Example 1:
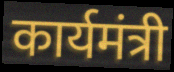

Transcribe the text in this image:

कार्यमंत्री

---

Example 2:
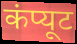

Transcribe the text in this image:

कंप्यूट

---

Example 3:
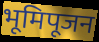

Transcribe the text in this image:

भूमिपूजन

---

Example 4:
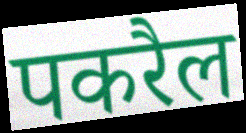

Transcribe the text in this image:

पकरैल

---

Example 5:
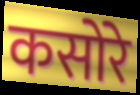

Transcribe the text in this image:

कसोरे